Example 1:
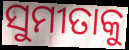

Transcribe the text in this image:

ସୁମୀତାକୁ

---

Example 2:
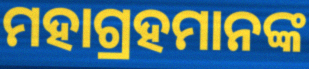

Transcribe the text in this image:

ମହାଗ୍ରହମାନଙ୍କ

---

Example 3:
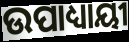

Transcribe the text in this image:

ଉପାଧ୍ୟାୟୀ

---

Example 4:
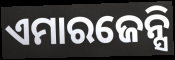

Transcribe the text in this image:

ଏମାରଜେନ୍ସି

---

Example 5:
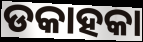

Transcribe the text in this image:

ଡକାହକା